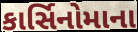
કાર્સિનોમાના